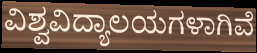
ವಿಶ್ವವಿದ್ಯಾಲಯಗಳಾಗಿವೆ